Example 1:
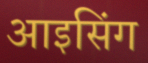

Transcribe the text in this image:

आइसिंग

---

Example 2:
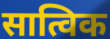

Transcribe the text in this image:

सात्विक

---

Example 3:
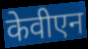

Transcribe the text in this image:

केवीएन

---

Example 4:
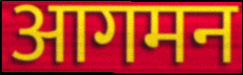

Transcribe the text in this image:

आगमन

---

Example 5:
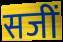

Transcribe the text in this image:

सजीं